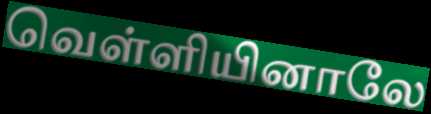
வெள்ளியினாலே